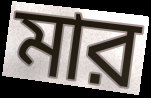
মার